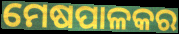
ମେଷପାଳକର